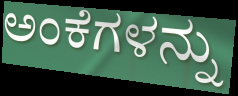
ಅಂಕೆಗಳನ್ನು